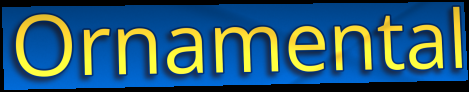
Ornamental